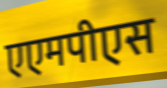
एएमपीएस